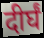
दीर्घं